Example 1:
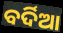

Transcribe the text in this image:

ବର୍ଦିଆ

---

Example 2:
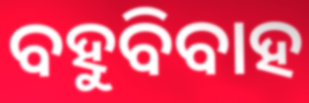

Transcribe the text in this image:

ବହୁବିବାହ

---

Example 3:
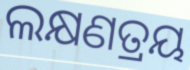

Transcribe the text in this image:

ଲକ୍ଷଣତ୍ରୟ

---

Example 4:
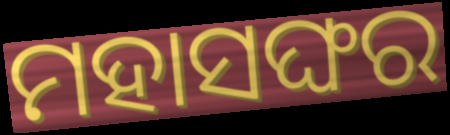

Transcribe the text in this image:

ମହାସଙ୍ଘର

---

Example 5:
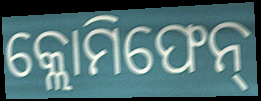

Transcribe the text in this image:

କ୍ଲୋମିଫେନ୍